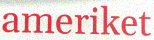
ameriket